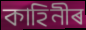
কাহিনীৰ